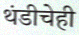
थंडीचेही